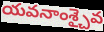
యవనాంశ్చైవ